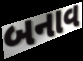
બનાવ